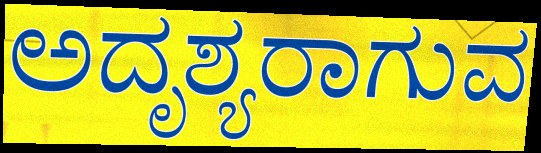
ಅದೃಶ್ಯರಾಗುವ